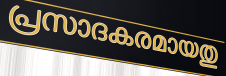
പ്രസാദകരമായതു